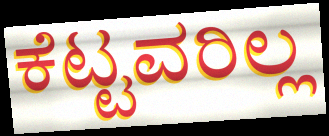
ಕೆಟ್ಟವರಿಲ್ಲ